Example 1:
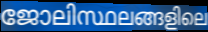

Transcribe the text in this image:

ജോലിസ്ഥലങ്ങളിലെ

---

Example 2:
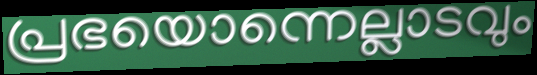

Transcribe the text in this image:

പ്രഭയൊന്നെല്ലാടവും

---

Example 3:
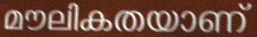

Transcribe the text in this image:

മൗലികതയാണ്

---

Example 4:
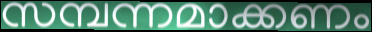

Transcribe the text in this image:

സമ്പന്നമാക്കണം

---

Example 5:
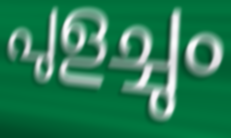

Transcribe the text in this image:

പുളച്ചും